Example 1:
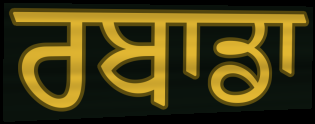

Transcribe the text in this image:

ਰਬਾਡਾ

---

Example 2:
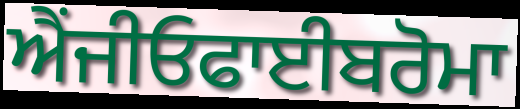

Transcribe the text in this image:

ਐਂਜੀਓਫਾਈਬਰੋਮਾ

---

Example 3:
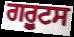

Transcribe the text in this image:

ਗਰੂਟਸ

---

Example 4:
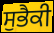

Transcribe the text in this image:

ਸੁਭੈਕੀ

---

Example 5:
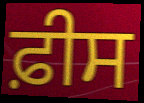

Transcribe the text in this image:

ਫ਼ੀਸ